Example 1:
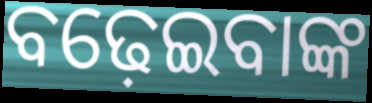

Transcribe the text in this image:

ବଢ଼େଇବାଙ୍କ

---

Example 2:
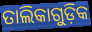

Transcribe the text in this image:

ତାଲିକାଗୁଡ଼ିକ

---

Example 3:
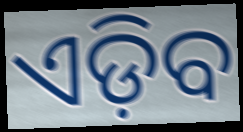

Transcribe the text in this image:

ଏଡ଼ିବ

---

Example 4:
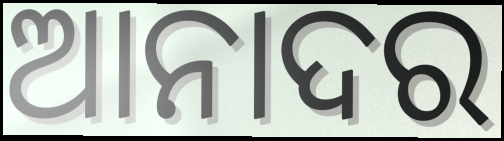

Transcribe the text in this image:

ଆନାଦର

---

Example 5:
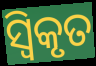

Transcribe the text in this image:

ସ୍ଵିକୃତ